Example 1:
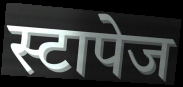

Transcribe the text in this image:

स्टापेज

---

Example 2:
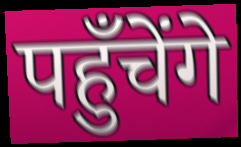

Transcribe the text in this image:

पहुँचेंगे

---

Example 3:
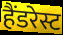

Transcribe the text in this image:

हैंडरेस्ट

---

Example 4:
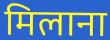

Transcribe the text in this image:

मिलाना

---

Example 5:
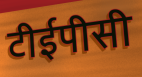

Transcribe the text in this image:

टीईपीसी